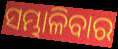
ସମ୍ଭାଳିବାର